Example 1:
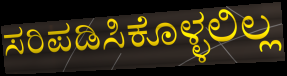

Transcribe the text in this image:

ಸರಿಪಡಿಸಿಕೊಳ್ಳಲಿಲ್ಲ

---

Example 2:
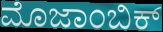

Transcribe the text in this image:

ಮೊಜಾಂಬಿಕ್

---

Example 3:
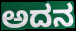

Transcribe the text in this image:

ಅದನ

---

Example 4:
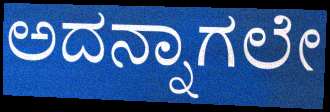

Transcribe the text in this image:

ಅದನ್ನಾಗಲೇ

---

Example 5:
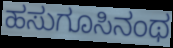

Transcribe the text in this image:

ಹಸುಗೂಸಿನಂಥ